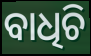
ବାଧିଚି